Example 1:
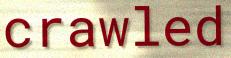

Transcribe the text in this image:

crawled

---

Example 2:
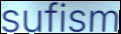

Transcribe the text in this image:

sufism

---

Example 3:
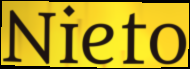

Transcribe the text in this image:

Nieto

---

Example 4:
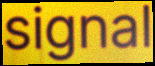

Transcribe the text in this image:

signal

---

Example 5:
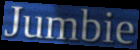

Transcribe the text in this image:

Jumbie